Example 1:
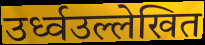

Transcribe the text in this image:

उर्ध्वउल्लेखित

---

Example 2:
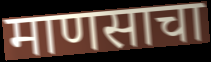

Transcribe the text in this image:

माणसाचा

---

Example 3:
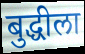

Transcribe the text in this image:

बुद्धीला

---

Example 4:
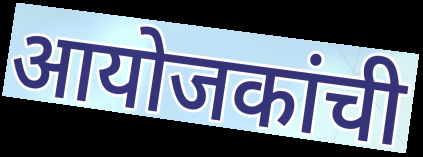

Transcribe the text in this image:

आयोजकांची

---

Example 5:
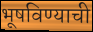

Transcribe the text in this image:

भूषविण्याची